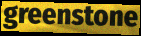
greenstone